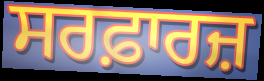
ਸਰਫ਼ਾਰਜ਼